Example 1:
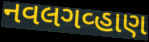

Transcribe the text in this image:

નવલગવ્હાણ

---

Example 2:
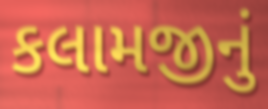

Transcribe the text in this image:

કલામજીનું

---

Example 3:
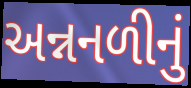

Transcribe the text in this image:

અન્નનળીનું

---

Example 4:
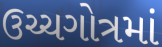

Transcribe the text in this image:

ઉચ્ચગોત્રમાં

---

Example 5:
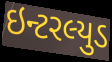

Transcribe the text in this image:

ઇન્ટરલ્યુડ